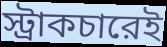
স্ট্রাকচারেই